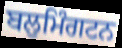
ਬਲੁਮਿੰਗਟਨ